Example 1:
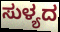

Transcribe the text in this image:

ಸುಳ್ಯದ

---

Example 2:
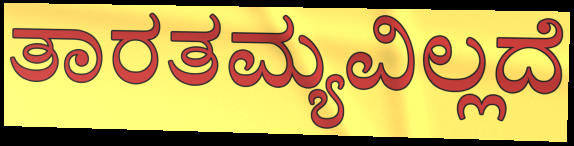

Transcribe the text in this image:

ತಾರತಮ್ಯವಿಲ್ಲದೆ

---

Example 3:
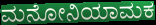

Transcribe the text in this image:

ಮನೋನಿಯಾಮಕ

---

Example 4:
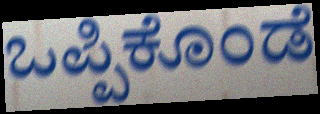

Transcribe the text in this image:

ಒಪ್ಪಿಕೊಂಡೆ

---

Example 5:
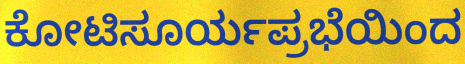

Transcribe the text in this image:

ಕೋಟಿಸೂರ್ಯಪ್ರಭೆಯಿಂದ